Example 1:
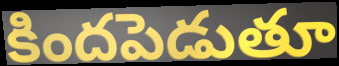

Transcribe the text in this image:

కిందపెడుతూ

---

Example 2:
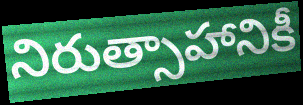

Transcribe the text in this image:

నిరుత్సాహానికీ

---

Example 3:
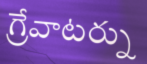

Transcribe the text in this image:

గ్రేవాటర్ను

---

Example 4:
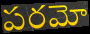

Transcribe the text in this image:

పరమో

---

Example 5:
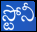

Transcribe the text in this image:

స్టోనీ